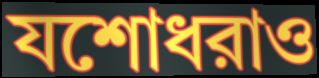
যশোধরাও